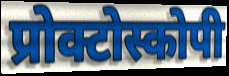
प्रोक्टोस्कोपी